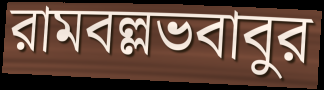
রামবল্লভবাবুর